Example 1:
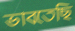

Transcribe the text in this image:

ভাবতেছি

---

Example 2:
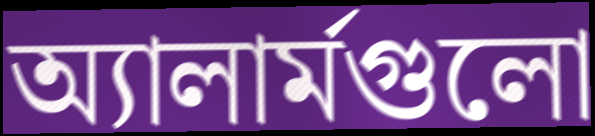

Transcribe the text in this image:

অ্যালার্মগুলো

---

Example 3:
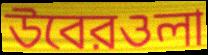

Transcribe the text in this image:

উবেরওলা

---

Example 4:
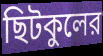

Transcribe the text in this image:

ছিটকুলের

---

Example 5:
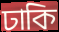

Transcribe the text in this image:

ঢাকি